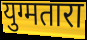
युग्मतारा